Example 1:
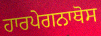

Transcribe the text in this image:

ਹਾਰਪੇਗਨਾਥੋਸ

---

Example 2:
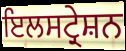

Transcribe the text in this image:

ਇਲਸਟ੍ਰੇਸ਼ਨ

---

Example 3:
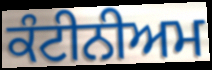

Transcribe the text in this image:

ਕੰਟੀਨੀਅਮ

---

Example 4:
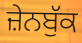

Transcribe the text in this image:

ਜ਼ੇਨਬੁੱਕ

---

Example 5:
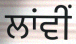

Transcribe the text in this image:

ਲਾਂਵੀਂ